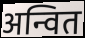
अन्वित